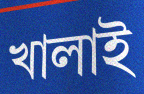
খালাই